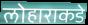
लोहाराकडे